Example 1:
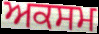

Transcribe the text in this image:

ਅਕਸਮ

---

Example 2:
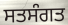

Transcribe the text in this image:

ਸਤਸੰਗਤ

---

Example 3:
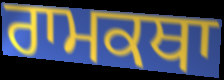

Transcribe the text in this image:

ਰਾਮਕਥਾ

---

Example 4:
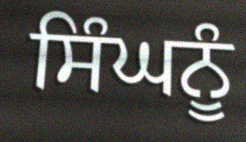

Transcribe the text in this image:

ਸਿੰਘਨੂੰ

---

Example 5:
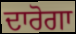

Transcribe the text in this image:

ਦਾਰੋਗਾ